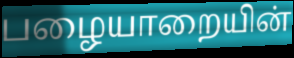
பழையாறையின்